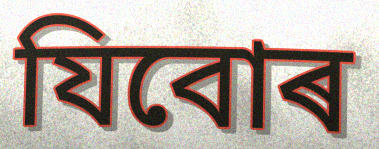
যিবোৰ